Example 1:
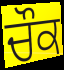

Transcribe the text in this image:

ਚੌਕ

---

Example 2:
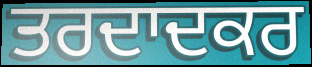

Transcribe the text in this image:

ਤਰਦਾਦਕਰ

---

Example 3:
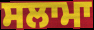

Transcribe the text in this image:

ਸਲਾਮਾ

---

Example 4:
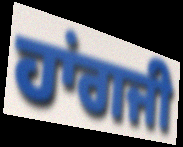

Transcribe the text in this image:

ਹਾਂਗਜੀ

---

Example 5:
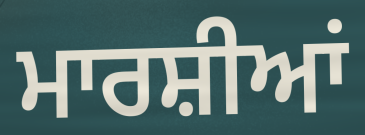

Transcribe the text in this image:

ਮਾਰਸ਼ੀਆਂ